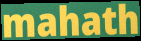
mahath